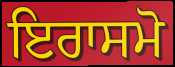
ਇਰਾਸਮੋ